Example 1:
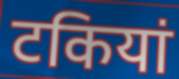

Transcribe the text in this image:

टकियां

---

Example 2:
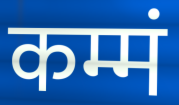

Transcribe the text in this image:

कम्मं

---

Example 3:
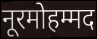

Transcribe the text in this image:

नूरमोहम्मद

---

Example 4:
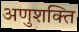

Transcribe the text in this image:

अणुशक्ति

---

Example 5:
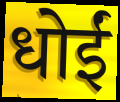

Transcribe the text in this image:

धोईं